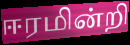
ஈரமின்றி